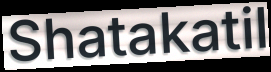
Shatakatil